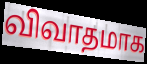
விவாதமாக